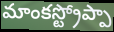
మాంకస్ట్రోప్పా